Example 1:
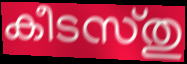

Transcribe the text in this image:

കീടസ്തു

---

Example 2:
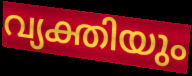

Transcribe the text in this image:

വ്യക്തിയും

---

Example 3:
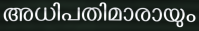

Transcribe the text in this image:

അധിപതിമാരായും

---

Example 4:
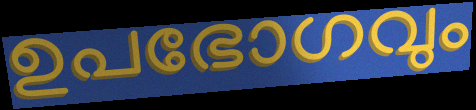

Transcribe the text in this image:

ഉപഭോഗവും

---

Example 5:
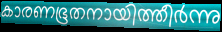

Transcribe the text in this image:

കാരണഭൂതനായിത്തീർന്നു